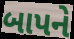
બાપને